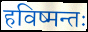
हविष्मन्तः